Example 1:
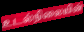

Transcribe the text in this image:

உடல்நிலையின்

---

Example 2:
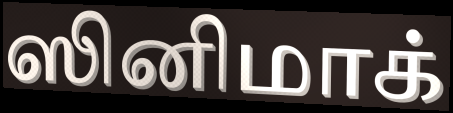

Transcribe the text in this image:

ஸினிமாக்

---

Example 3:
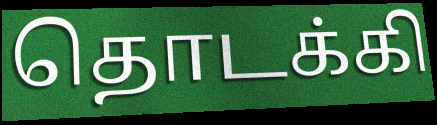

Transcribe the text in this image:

தொடக்கி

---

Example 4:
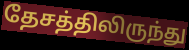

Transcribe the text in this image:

தேசத்திலிருந்து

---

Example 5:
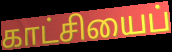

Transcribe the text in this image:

காட்சியைப்